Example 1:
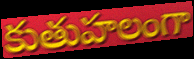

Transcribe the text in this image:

కుతుహలంగా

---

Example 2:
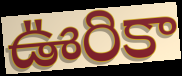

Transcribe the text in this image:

ఊరికా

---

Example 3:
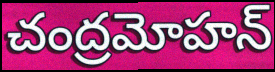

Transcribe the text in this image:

చంద్రమోహన్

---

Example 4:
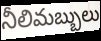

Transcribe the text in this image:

నీలిమబ్బులు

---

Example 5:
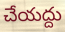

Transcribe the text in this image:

చేయద్దు